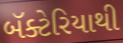
બૅક્ટેરિયાથી